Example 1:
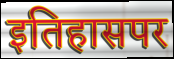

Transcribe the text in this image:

इतिहासपर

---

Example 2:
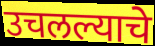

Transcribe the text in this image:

उचलल्याचे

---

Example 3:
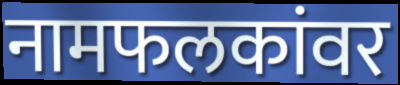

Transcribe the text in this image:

नामफलकांवर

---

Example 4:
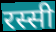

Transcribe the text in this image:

रस्सी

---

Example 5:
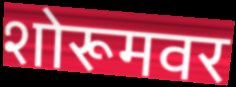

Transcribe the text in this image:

शोरूमवर